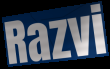
Razvi